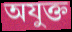
অযুক্ত